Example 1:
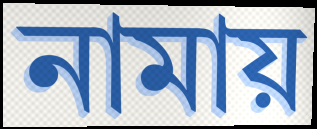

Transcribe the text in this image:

নামায়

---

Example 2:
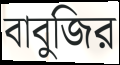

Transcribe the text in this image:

বাবুজির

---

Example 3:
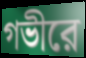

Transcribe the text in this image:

গভীরে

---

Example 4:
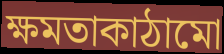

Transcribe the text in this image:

ক্ষমতাকাঠামো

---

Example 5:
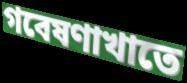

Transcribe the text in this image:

গবেষণাখাতে